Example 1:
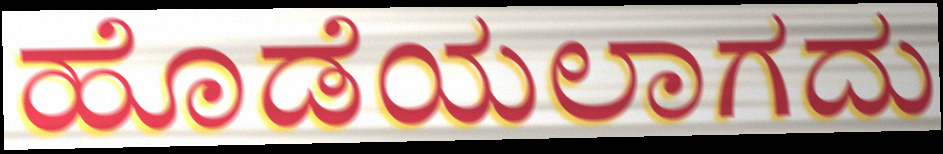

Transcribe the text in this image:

ಹೊಡೆಯಲಾಗದು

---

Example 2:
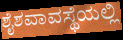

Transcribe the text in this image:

ಶೈಶವಾವಸ್ಥೆಯಲ್ಲಿ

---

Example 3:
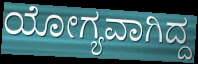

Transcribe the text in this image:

ಯೋಗ್ಯವಾಗಿದ್ದ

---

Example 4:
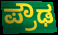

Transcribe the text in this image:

ಪ್ರೌಢ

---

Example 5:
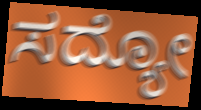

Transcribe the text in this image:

ಸದ್ಯೋ